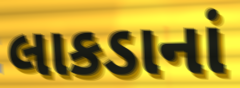
લાકડાનાં